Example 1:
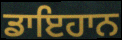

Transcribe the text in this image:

ਡਾਇਹਾਨ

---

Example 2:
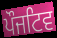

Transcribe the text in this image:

ਪੌਜਟਿਵ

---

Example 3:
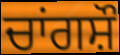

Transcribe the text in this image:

ਚਾਂਗਸ਼ੌ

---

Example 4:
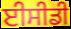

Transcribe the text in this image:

ਈਸੀਡੀ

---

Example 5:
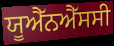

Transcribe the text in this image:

ਯੂਐੱਨਐੱਸਸੀ